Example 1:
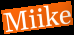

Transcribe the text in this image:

Miike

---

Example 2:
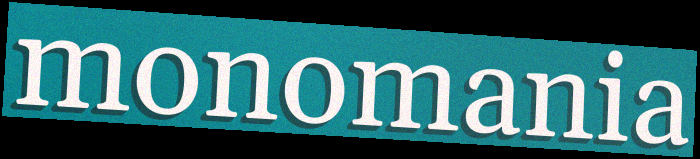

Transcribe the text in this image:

monomania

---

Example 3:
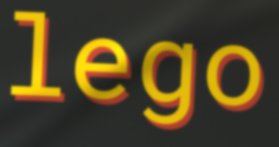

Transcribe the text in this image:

lego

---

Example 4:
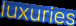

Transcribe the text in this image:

luxuries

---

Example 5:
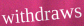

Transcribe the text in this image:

withdraws